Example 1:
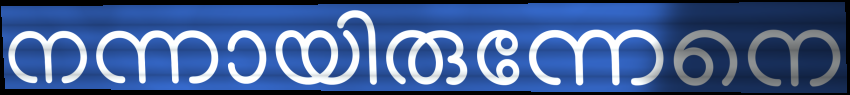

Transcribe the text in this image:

നന്നായിരുന്നേനെ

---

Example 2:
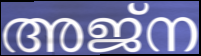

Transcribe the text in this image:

അജ്ന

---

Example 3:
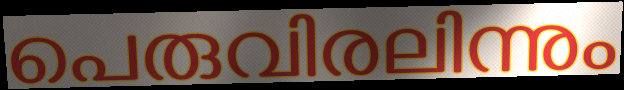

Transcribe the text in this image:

പെരുവിരലിന്നും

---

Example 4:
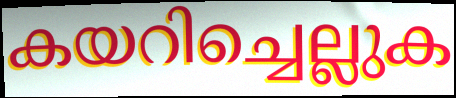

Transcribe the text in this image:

കയറിച്ചെല്ലുക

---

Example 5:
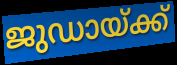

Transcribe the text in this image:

ജുഡായ്ക്ക്